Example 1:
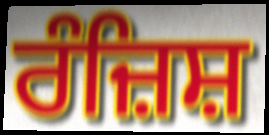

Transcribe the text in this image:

ਰੰਜ਼ਿਸ਼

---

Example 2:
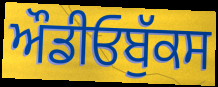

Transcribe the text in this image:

ਔਡੀਓਬੁੱਕਸ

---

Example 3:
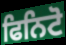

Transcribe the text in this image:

ਫਿਨਿਟੋ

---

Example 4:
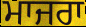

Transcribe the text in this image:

ਮਾਜਰਾ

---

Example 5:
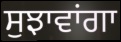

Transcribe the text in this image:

ਸੁਝਾਵਾਂਗਾ